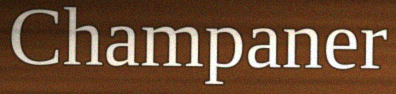
Champaner